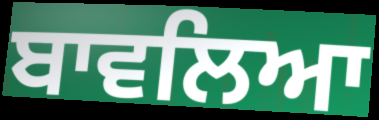
ਬਾਵਲਿਆ